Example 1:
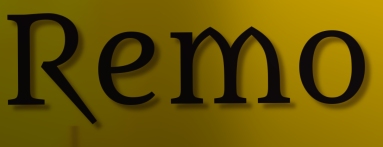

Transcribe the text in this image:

Remo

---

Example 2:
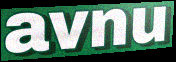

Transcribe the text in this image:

avnu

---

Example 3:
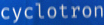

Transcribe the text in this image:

cyclotron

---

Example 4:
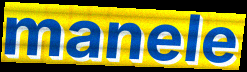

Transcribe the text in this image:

manele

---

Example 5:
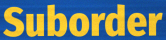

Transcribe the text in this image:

Suborder